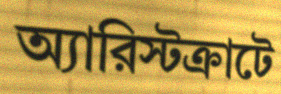
অ্যারিস্টক্রাটে